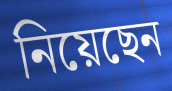
নিয়েছেন